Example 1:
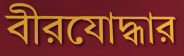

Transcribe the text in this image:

বীরযোদ্ধার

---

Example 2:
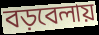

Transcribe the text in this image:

বড়বেলায়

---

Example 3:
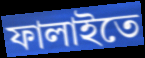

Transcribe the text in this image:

ফালাইতে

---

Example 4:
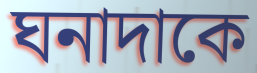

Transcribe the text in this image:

ঘনাদাকে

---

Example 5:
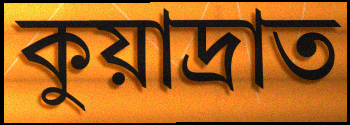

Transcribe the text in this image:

কুয়াদ্রাত